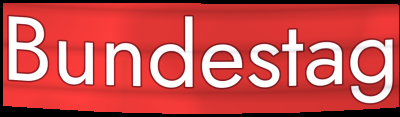
Bundestag